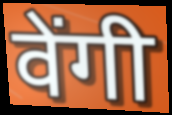
वेंगी